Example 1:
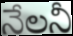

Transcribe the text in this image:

నేలనీ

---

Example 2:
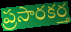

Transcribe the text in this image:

ప్రసారకర్త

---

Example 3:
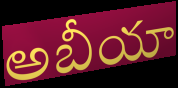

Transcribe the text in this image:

అబీయా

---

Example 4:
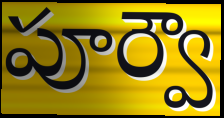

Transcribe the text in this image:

పూర్వౌ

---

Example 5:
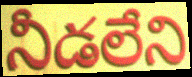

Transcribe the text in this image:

నీడలేని